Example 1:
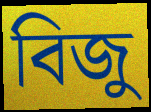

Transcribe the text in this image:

বিজু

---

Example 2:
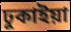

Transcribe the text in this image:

ঢুকাইয়া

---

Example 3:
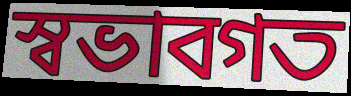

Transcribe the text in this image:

স্বভাবগত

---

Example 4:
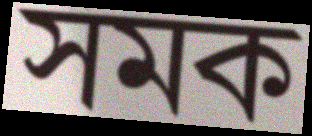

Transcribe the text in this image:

সমক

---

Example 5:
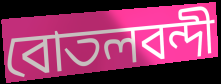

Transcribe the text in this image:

বোতলবন্দী